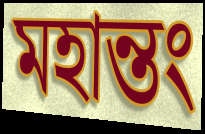
মহান্তং